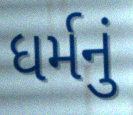
ધર્મનું